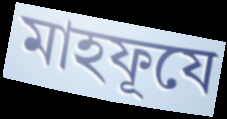
মাহফূযে